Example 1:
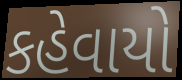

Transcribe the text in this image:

કહેવાયો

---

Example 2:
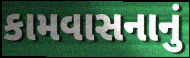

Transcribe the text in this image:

કામવાસનાનું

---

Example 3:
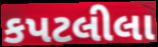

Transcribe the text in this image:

કપટલીલા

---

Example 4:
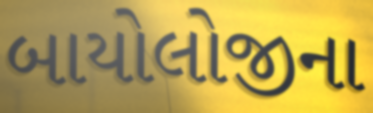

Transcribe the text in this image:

બાયોલોજીના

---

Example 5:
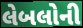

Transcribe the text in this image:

લેબલોની